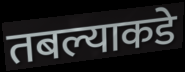
तबल्याकडे